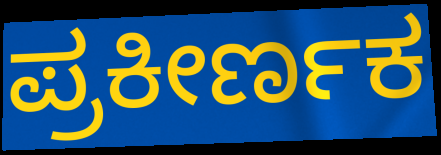
ಪ್ರಕೀರ್ಣಕ